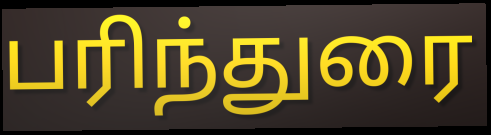
பரிந்துரை